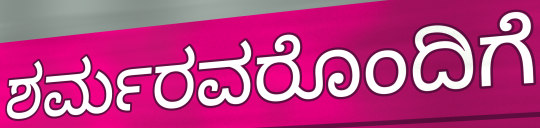
ಶರ್ಮರವರೊಂದಿಗೆ